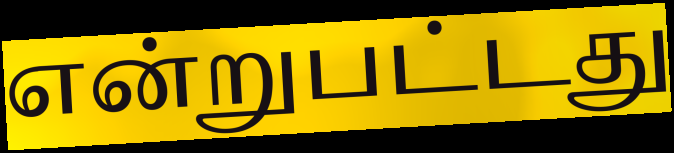
என்றுபட்டது